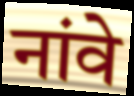
नांवे